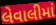
લેવાલીમાં